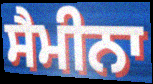
ਸੈਮੀਨਾ